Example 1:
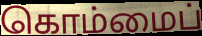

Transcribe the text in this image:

கொம்மைப்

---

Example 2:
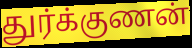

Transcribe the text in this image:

துர்க்குணன்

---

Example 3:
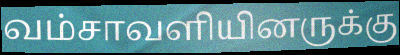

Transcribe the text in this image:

வம்சாவளியினருக்கு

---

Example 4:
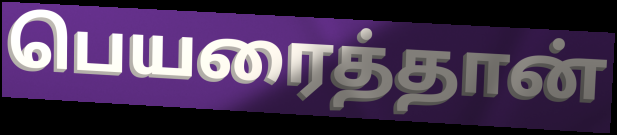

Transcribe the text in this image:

பெயரைத்தான்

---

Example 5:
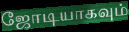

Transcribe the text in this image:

ஜோடியாகவும்